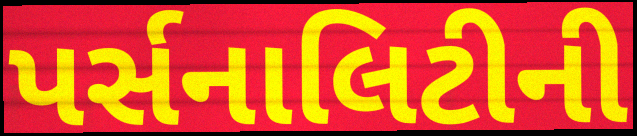
પર્સનાલિટીની